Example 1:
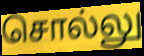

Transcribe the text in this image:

சொல்லு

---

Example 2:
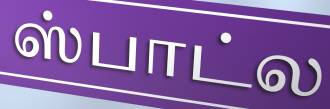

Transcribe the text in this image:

ஸ்பாட்ல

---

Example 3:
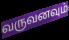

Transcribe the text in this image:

வருவனவும்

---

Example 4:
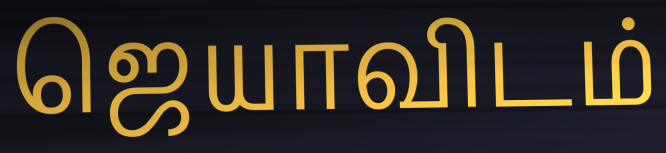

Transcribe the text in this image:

ஜெயாவிடம்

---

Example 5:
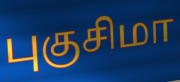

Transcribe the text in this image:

புகுசிமா